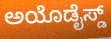
ಅಯೊಡೈಸ್ಡ್